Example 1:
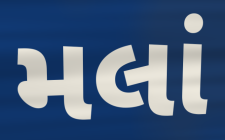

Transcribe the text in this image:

મલાં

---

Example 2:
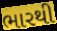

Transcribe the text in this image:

ભારથી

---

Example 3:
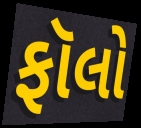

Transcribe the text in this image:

ફૉલો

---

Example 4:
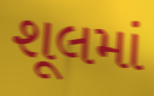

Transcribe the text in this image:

શૂલમાં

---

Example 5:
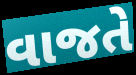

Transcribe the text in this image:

વાજતે